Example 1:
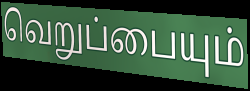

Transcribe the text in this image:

வெறுப்பையும்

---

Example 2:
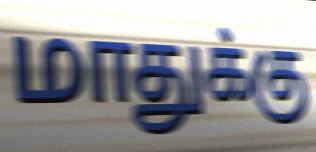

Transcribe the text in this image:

மாதுக்கு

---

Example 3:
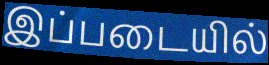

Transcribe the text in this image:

இப்படையில்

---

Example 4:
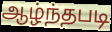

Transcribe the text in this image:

ஆழ்ந்தபடி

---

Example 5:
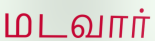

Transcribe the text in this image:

மடவார்